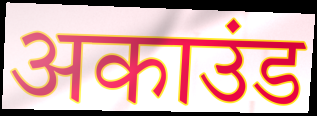
अकाउंड